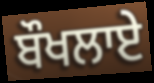
ਬੌਖਲਾਏ